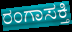
ರಂಗಾಸಕ್ತಿ